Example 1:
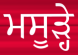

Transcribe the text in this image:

ਮਸੂੜ੍ਹੇ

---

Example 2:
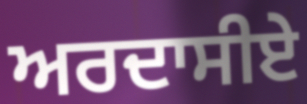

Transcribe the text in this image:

ਅਰਦਾਸੀਏ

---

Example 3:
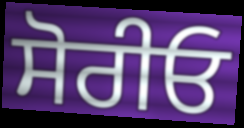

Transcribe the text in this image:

ਸੋਰੀਓ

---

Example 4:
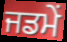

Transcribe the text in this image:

ਜਡਮੇਂ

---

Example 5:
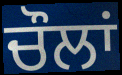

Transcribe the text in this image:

ਚੌਲਾਂ